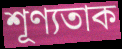
শূণ্যতাক